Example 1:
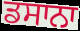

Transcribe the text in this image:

ਡਸਾਨਾ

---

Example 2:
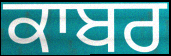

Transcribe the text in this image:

ਕਾਬਰ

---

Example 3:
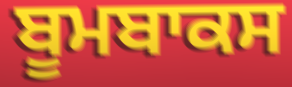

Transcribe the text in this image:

ਬੂਮਬਾਕਸ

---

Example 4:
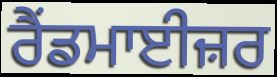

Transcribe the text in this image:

ਰੈਂਡਮਾਈਜ਼ਰ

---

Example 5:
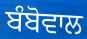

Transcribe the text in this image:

ਬੰਬੋਵਾਲ